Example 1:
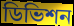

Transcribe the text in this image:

ডিভিশন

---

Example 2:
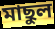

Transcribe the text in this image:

মাছুল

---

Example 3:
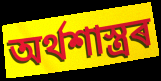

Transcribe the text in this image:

অৰ্থশাস্ত্ৰৰ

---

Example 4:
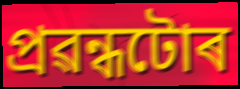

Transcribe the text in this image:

প্ৰৱন্ধটোৰ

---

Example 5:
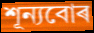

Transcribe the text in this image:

শূন্যবোৰ